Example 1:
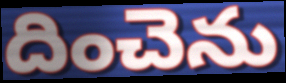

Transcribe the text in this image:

దించెను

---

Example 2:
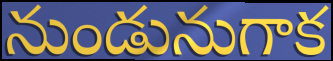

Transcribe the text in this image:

నుండునుగాక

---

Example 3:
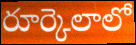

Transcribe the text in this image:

రూర్కెలాలో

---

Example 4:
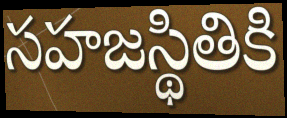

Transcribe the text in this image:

సహజస్థితికి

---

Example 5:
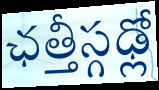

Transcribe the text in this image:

ఛత్తీస్గఢ్లో